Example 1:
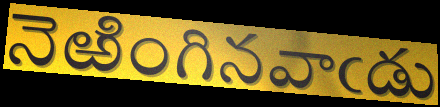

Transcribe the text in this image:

నెఱింగినవాఁడు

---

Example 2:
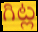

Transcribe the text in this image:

గిట్ల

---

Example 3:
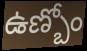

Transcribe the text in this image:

ఉణ్బోం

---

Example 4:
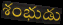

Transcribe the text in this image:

శంభుడు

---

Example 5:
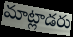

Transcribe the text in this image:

మాట్లాడరు